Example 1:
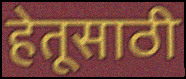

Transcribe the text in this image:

हेतूसाठी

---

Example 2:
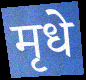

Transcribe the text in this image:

मृधे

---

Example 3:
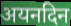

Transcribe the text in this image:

अयनदिन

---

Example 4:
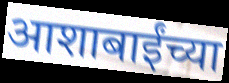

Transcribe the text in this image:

आशाबाईंच्या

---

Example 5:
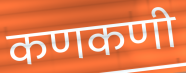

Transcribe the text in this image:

कणकणी